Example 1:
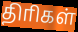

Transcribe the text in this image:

திரிகள்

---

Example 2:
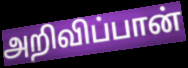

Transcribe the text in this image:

அறிவிப்பான்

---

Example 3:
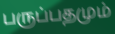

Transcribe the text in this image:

பருப்பதமும்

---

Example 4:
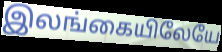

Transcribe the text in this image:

இலங்கையிலேயே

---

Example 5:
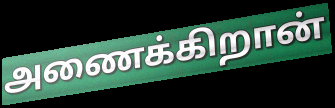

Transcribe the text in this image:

அணைக்கிறான்